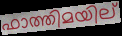
ഫാത്തിമയില്